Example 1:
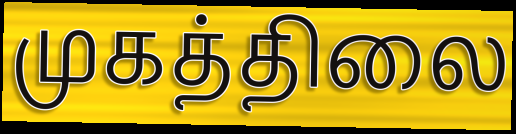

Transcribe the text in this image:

முகத்திலை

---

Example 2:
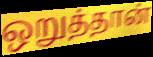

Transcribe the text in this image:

ஒறுத்தான்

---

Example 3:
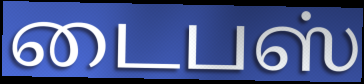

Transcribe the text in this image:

டைபஸ்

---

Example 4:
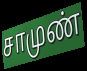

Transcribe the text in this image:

சாமுண்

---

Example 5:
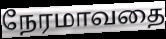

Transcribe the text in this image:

நேரமாவதை